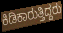
ಕಿಡಿಕಾರುತ್ತಿದ್ದರು